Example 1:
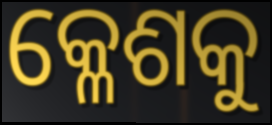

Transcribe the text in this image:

କ୍ଳେଶକୁ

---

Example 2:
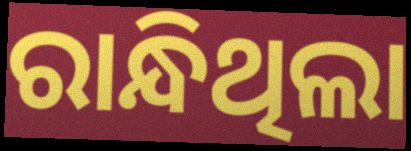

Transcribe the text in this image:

ରାନ୍ଧିଥିଲା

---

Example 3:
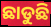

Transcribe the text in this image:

ଛାଡୁଛି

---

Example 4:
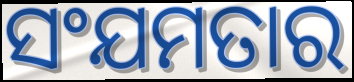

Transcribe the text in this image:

ସଂଯମତାର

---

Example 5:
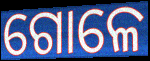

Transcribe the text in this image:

ଗୋଳେ